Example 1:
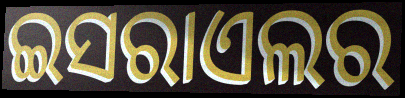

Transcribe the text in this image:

ଇସରାଏଲର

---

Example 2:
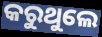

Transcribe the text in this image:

କରୁଥୁଲେ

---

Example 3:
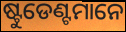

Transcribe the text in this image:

ଷ୍ଟୁଡେଣ୍ଟମାନେ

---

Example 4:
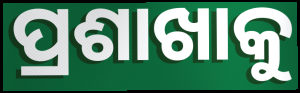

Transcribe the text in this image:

ପ୍ରଶାଖାକୁ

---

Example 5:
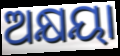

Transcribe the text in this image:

ଅକ୍ଷୟା